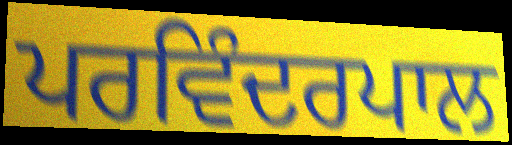
ਪਰਵਿੰਦਰਪਾਲ